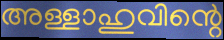
അള്ളാഹുവിന്റെ